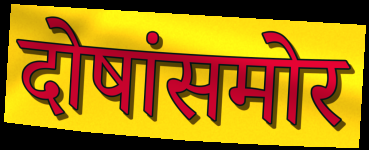
दोषांसमोर